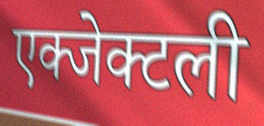
एक्जेक्टली